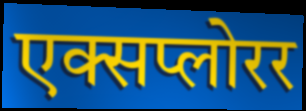
एक्सप्लोरर